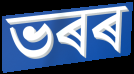
ভৰৰ